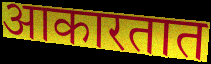
आकारतात